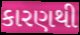
કારણથી